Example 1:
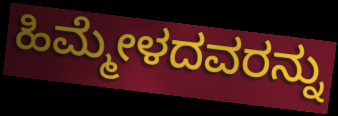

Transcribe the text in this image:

ಹಿಮ್ಮೇಳದವರನ್ನು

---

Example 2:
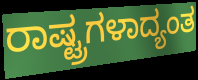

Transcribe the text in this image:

ರಾಷ್ಟ್ರಗಳಾದ್ಯಂತ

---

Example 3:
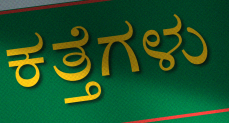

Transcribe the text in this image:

ಕತ್ತೆಗಳು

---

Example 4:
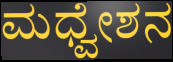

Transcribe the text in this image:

ಮಧ್ವೇಶನ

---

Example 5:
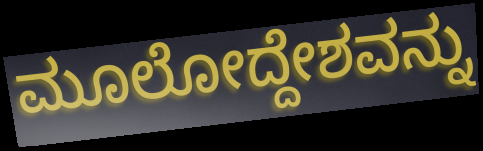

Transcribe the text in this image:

ಮೂಲೋದ್ದೇಶವನ್ನು